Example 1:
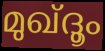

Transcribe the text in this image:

മുഖ്ദൂം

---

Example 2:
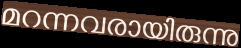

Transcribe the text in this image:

മറന്നവരായിരുന്നു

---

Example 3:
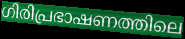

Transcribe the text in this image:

ഗിരിപ്രഭാഷണത്തിലെ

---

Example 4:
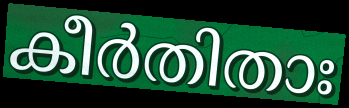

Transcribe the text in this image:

കീർതിതാഃ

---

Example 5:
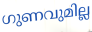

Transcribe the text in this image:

ഗുണവുമില്ല